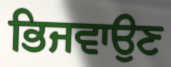
ਭਿਜਵਾਉਣ